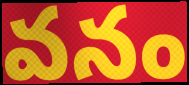
వనం